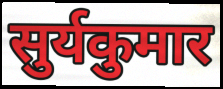
सुर्यकुमार